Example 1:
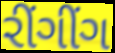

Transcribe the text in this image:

રીંગીંગ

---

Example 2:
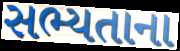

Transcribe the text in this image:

સભ્યતાના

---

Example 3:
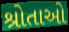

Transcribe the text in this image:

શ્રોતાઓ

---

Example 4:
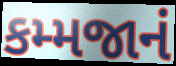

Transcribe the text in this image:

કમ્મજાનં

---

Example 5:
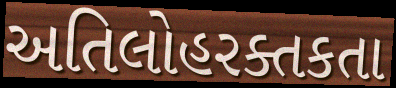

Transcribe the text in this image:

અતિલોહરક્તકતા